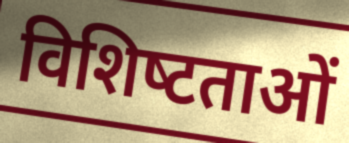
विशिष्‍टताओं